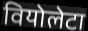
वियोलेटा